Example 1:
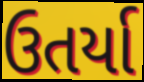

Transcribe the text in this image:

ઉતર્યા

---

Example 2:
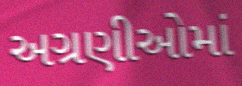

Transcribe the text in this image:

અગ્રણીઓમાં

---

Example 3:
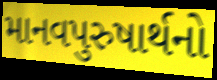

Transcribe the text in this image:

માનવપુરુષાર્થનો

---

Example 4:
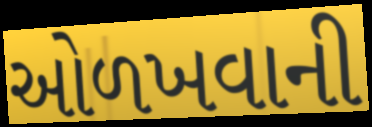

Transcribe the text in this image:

ઓળખવાની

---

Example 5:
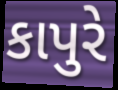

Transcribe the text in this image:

કાપુરે